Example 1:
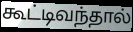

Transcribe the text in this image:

கூட்டிவந்தால்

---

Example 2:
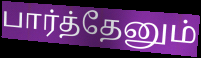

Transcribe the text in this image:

பார்த்தேனும்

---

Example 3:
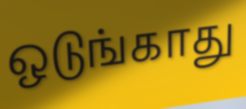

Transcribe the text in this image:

ஒடுங்காது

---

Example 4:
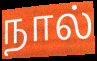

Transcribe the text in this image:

நால்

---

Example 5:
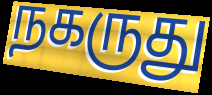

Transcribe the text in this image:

நகருது